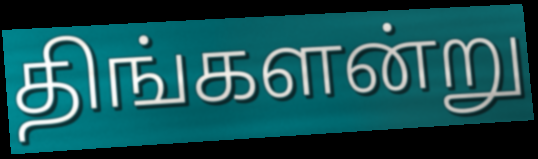
திங்களன்று